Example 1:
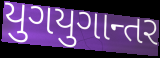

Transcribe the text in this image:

યુગયુગાન્તર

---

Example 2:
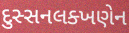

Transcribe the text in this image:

દુસ્સનલક્ખણેન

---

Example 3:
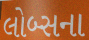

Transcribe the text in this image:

લોબ્સના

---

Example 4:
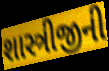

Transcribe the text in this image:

શાસ્ત્રીજીની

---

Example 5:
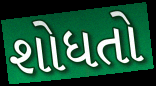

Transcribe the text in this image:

શોધતો